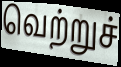
வெற்றுச்